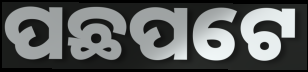
ପଛପଟେ